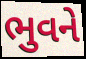
ભુવને